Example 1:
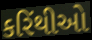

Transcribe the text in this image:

કરિંથીઓ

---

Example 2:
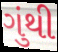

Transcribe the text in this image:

ગુંથી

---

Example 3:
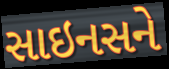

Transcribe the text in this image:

સાઇનસને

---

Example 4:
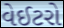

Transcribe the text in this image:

વેઈટરો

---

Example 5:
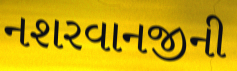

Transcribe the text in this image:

નશરવાનજીની